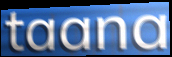
taana